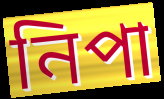
নিপা